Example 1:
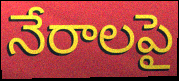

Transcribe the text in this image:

నేరాలపై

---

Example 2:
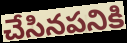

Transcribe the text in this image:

చేసినపనికి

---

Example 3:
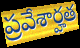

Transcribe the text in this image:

ప్రవేశార్హత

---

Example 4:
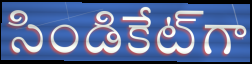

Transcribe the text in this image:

సిండికేట్‌గా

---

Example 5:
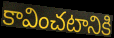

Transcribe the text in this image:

కావించటానికి